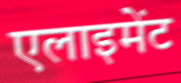
एलाइमेंट